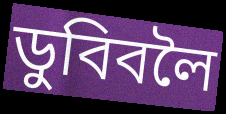
ডুবিবলৈ